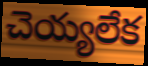
చెయ్యలేక